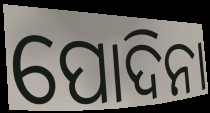
ପୋଦିନା